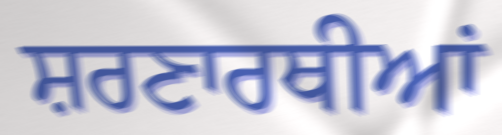
ਸ਼ਰਣਾਰਥੀਆਂ